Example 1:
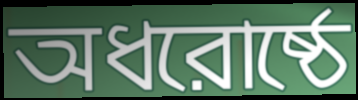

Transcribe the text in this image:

অধরোষ্ঠে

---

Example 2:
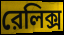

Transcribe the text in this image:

রেলিক্স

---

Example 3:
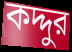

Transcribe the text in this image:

কদ্দুর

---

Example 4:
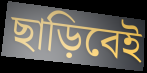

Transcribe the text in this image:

ছাড়িবেই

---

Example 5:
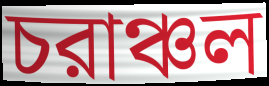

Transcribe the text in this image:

চরাঞ্চল